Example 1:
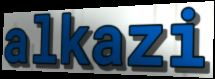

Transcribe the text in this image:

alkazi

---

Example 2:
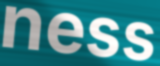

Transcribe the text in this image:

ness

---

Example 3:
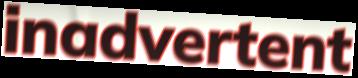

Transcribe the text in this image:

inadvertent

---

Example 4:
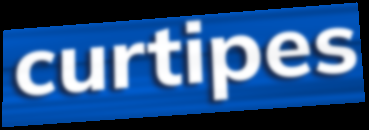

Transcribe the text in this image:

curtipes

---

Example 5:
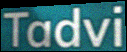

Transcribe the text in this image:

Tadvi